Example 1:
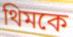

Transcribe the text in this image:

থিমকে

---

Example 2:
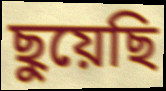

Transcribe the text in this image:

ছুয়েছি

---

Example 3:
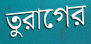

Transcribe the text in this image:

তুরাগের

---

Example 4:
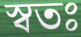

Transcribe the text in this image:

স্বতঃ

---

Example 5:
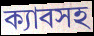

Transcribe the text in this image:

ক্যাবসহ